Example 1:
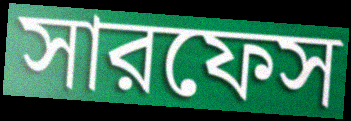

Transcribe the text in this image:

সারফেস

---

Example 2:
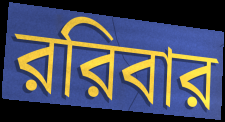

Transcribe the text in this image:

ররিবার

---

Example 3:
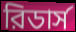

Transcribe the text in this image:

রিডার্স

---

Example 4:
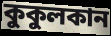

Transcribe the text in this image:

কুকুলকান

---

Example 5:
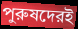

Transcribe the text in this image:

পুরুষদেরই